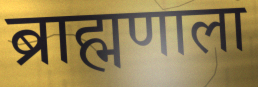
ब्राह्मणाला